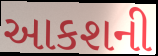
આકશની